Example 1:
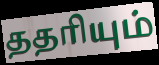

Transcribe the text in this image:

ததரியும்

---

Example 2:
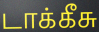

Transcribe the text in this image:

டாக்கீசு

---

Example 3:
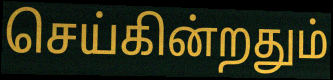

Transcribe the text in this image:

செய்கின்றதும்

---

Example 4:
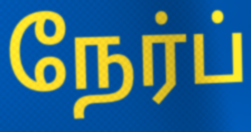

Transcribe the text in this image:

நேர்ப்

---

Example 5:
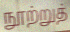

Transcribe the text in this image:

நூற்றுத்